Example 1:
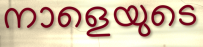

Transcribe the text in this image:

നാളെയുടെ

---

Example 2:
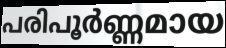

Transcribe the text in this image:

പരിപൂർണ്ണമായ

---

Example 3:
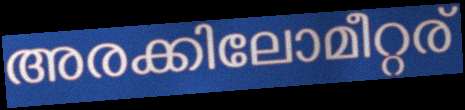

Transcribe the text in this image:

അരക്കിലോമീറ്റര്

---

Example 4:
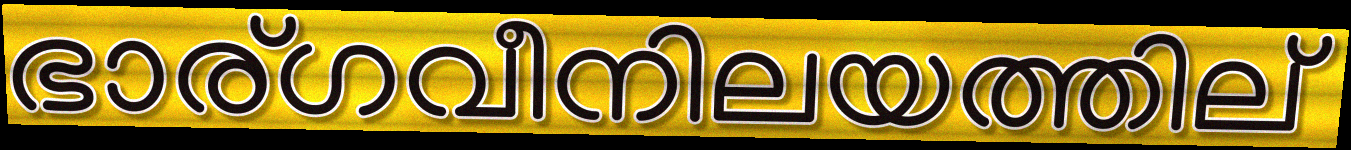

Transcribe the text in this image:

ഭാര്ഗവീനിലയത്തില്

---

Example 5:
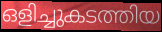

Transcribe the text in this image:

ഒളിച്ചുകടത്തിയ